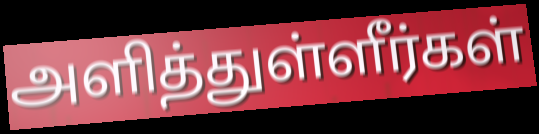
அளித்துள்ளீர்கள்